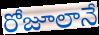
రోజూలానే